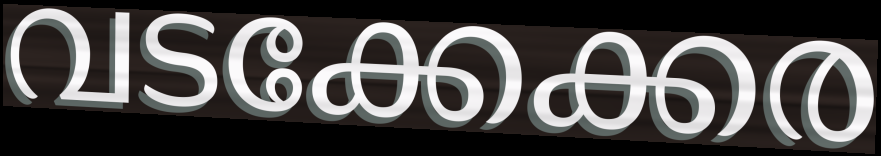
വടക്കേക്കര